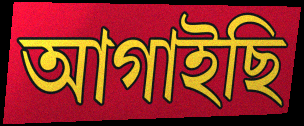
আগাইছি